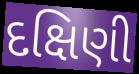
દક્ષિણી